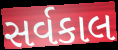
સર્વકાલ